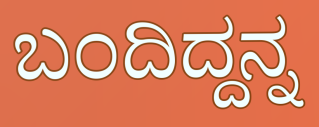
ಬಂದಿದ್ದನ್ನ